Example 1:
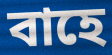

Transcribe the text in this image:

বাহে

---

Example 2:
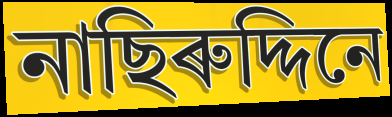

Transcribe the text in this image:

নাছিৰুদ্দিনে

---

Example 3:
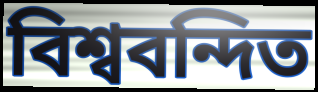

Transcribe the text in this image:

বিশ্ববন্দিত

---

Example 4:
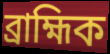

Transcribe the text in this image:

ব্ৰাহ্মিক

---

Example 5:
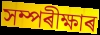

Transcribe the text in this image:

সম্পৰীক্ষাৰ